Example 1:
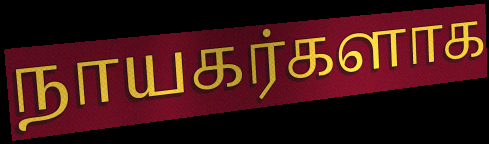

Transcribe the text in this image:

நாயகர்களாக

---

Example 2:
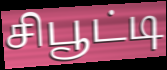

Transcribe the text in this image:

சிபூட்டி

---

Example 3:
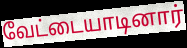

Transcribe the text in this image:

வேட்டையாடினார்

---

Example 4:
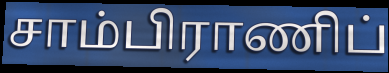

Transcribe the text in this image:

சாம்பிராணிப்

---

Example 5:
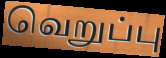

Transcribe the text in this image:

வெறுப்பு